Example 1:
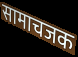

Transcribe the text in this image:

सामाचजक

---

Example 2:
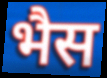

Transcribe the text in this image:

भैस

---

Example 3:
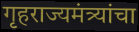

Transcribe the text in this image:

गृहराज्यमंत्र्यांचा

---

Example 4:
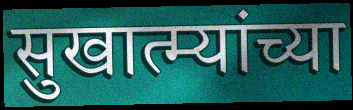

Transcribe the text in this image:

सुखात्म्यांच्या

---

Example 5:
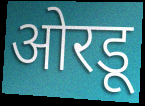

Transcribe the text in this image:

ओरडू